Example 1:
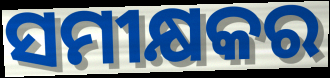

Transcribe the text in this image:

ସମୀକ୍ଷକର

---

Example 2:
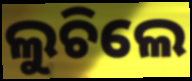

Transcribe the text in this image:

ଲୁଚିଲେ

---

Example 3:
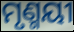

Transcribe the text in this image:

ମୃଣ୍ମୟୀ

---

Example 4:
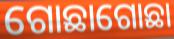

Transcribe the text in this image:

ଗୋଛାଗୋଛା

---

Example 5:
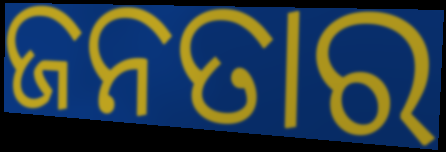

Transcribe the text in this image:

ଜନତାର